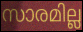
സാരമില്ല